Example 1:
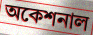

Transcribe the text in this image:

অকেশনাল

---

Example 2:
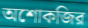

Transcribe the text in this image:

অশোকজির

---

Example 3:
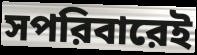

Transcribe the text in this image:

সপরিবারেই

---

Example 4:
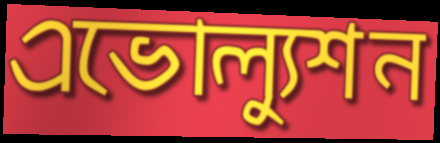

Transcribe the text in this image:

এভোল্যুশন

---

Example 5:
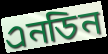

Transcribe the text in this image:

এনডিন